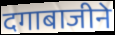
दगाबाजीने